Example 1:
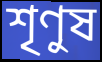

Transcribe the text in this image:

শৃণুষ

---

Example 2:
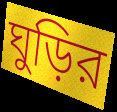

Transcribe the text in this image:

ঘুড়ির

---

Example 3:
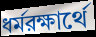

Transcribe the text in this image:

ধর্মরক্ষার্থে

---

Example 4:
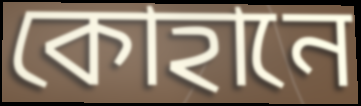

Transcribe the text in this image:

কোহানে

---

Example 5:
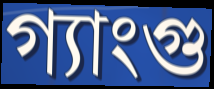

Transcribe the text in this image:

গ্যাংগু